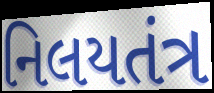
નિલયતંત્ર